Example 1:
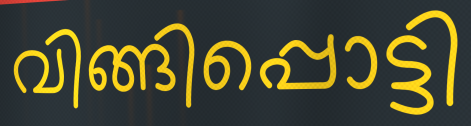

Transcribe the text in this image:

വിങ്ങിപ്പൊട്ടി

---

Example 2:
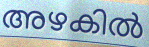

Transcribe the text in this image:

അഴകിൽ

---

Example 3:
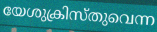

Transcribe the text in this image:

യേശുക്രിസ്തുവെന്ന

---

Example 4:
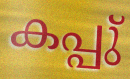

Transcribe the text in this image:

കപ്പു്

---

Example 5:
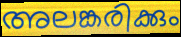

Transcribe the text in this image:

അലങ്കരിക്കും